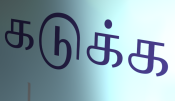
கடுக்க